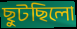
ছুটছিলো